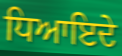
ਧਿਆਇਦੇ